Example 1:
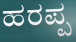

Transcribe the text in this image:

ಹರಪ್ಪ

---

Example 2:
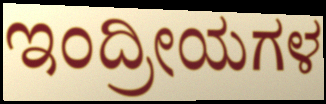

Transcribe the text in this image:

ಇಂದ್ರೀಯಗಳ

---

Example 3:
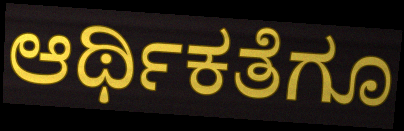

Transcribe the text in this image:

ಆರ್ಥಿಕತೆಗೂ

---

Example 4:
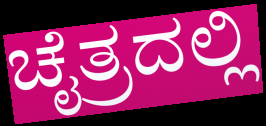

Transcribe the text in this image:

ಚೈತ್ರದಲ್ಲಿ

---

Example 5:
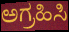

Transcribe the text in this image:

ಅಗ್ರಹಿಸಿ